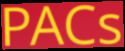
PACs